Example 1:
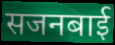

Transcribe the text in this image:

सजनबाई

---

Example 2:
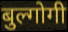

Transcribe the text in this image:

बुल्गोगी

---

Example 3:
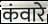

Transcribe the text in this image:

कंवारे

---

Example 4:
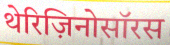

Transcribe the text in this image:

थेरिज़िनोसॉरस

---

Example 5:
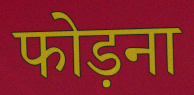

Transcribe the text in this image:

फोड़ना